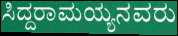
ಸಿದ್ದರಾಮಯ್ಯನವರು